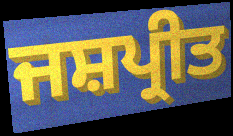
ਜਸ਼ਪ੍ਰੀਤ